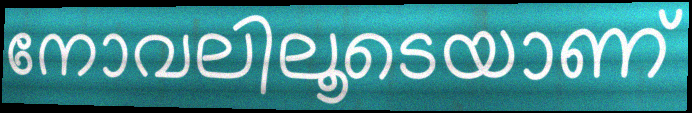
നോവലിലൂടെയാണ്